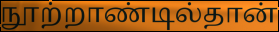
நூற்றாண்டில்தான்